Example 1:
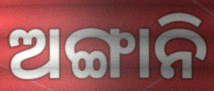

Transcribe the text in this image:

ଅଙ୍ଗାନି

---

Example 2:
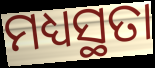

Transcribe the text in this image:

ମଧ୍ୟସ୍ଥତା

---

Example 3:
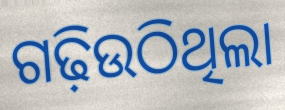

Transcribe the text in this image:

ଗଢ଼ିଉଠିଥିଲା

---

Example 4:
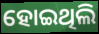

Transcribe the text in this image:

ହୋଇଥିଲି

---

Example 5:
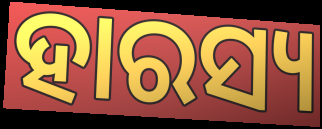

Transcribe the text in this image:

ହାରସ୍ୟ